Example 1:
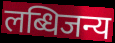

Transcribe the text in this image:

लब्धिजन्य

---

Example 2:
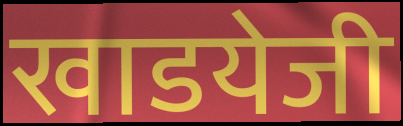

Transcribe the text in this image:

खाडयेजी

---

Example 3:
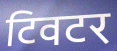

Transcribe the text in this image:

टिवटर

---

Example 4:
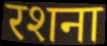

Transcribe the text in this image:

रशना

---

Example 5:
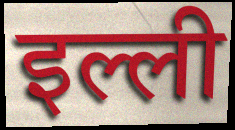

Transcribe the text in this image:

इल्ली